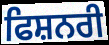
ਫਿਸ਼ਨਰੀ